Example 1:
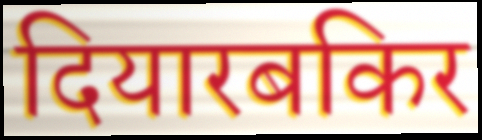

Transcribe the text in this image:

दियारबकिर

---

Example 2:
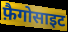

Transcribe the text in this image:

फ़ैगोसाइट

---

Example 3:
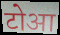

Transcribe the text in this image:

टोआ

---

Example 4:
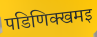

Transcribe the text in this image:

पडिणिक्खमइ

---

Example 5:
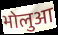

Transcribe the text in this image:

भोलुआ